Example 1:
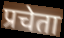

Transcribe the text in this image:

प्रचेता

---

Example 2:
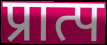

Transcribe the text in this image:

प्रात्प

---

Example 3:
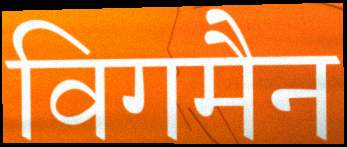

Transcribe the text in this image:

विगमैन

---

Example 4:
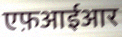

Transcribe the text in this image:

एफ़आईआर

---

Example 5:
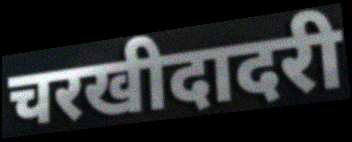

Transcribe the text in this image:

चरखीदादरी